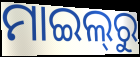
ମାଇଲ୍‌ରୁ